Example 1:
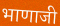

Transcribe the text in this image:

भाणाजी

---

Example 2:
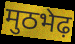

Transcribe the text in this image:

मुठभेढ़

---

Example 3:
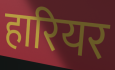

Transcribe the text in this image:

हारियर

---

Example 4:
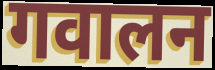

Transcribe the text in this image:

गवालन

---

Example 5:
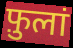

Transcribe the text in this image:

फ़ुलां